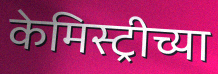
केमिस्ट्रीच्या